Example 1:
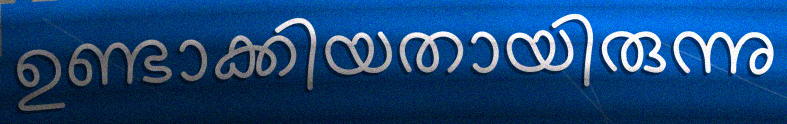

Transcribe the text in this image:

ഉണ്ടാക്കിയതായിരുന്നു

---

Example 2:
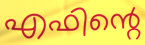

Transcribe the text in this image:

എഫിന്റെ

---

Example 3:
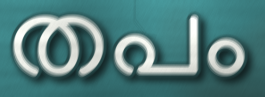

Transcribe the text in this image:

തപം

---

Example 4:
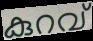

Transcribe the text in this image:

കുറവ്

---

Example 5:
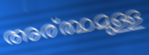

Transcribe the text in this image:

അര്ത്ഥമുള്ള